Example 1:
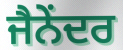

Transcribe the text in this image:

ਜੈਨੇਂਦਰ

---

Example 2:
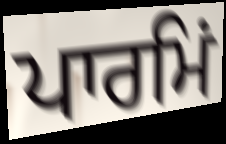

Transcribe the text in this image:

ਪਾਰਮਿਂ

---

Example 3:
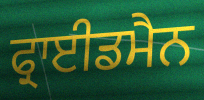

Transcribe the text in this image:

ਫ੍ਰਾਈਡਮੈਨ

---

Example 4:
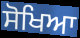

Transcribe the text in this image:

ਸੋਖਿਆ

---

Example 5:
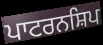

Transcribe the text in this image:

ਪਾਟਰਨਸ਼ਿਪ